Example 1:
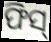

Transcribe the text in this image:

ଫିସ୍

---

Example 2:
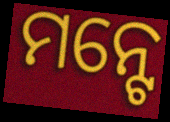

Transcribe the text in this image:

ମନ୍ଟେ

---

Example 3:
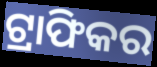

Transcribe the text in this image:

ଟ୍ରାଫିକର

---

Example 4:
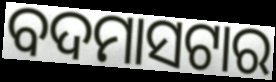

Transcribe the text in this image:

ବଦମାସଟାର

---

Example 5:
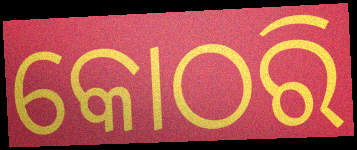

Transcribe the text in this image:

କୋଠରି